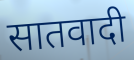
सातवादी